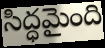
సిద్ధమైంది